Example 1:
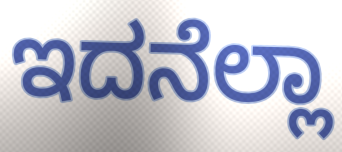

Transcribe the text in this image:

ಇದನೆಲ್ಲಾ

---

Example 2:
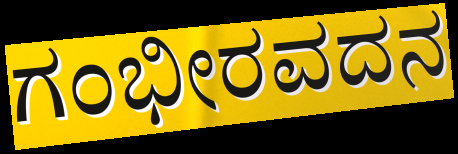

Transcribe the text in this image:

ಗಂಭೀರವದನ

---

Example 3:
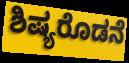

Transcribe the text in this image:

ಶಿಷ್ಯರೊಡನೆ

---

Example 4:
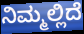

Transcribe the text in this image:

ನಿಮ್ಮಲ್ಲಿದೆ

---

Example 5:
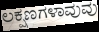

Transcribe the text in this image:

ಲಕ್ಷಣಗಳಾವುವು